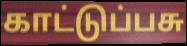
காட்டுப்பசு